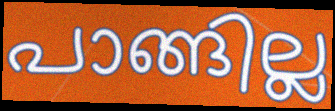
പാങ്ങില്ല